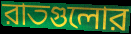
রাতগুলোর